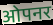
ओपनर